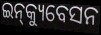
ଇନ୍‌କ୍ୟୁବେସନ